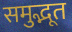
समुद्भूत